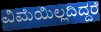
ವಿಮೆಯಿಲ್ಲದಿದ್ದರೆ